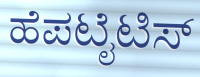
ಹೆಪಟೈಟಿಸ್